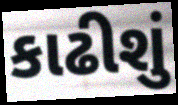
કાઢીશું